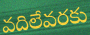
వదిలేవరకు